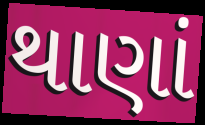
થાણાં